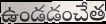
ఉండడంచేత